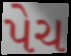
પેચ